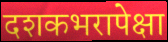
दशकभरापेक्षा